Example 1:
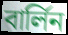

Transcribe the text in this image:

বার্লিন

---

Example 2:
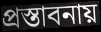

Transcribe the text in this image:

প্রস্তাবনায়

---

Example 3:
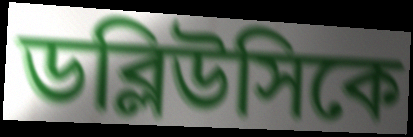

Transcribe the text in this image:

ডব্লিউসিকে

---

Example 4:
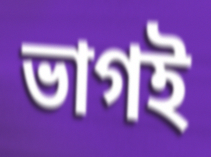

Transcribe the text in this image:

ভাগই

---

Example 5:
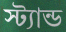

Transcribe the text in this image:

স্ট্যান্ড